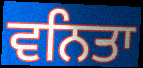
ਵਨਿਤਾ